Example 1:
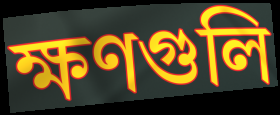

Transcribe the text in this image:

ক্ষণগুলি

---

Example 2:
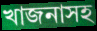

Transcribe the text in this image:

খাজনাসহ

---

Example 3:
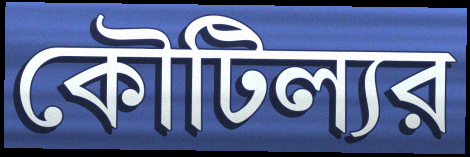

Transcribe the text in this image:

কৌটিল্যর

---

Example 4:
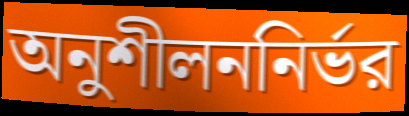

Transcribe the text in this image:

অনুশীলননির্ভর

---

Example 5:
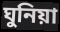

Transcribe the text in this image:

ঘুনিয়া